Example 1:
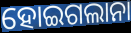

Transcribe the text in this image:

ହୋଇଗଲାନା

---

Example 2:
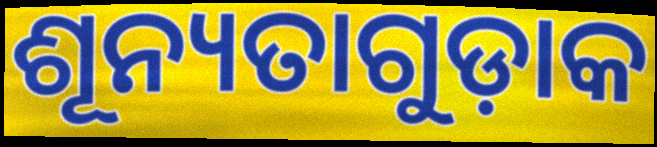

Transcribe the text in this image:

ଶୂନ୍ୟତାଗୁଡ଼ାକ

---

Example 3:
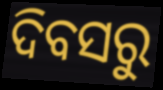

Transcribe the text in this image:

ଦିବସରୁ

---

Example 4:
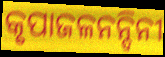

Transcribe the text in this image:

କୃପାଜଳନନ୍ଦିନୀ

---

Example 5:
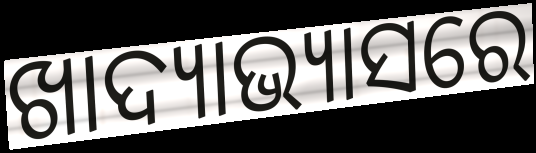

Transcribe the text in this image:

ଖାଦ୍ୟାଭ୍ୟାସରେ